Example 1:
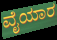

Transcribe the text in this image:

ವೈಯಾರ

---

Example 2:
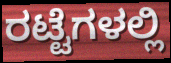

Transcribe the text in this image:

ರಟ್ಟೆಗಳಲ್ಲಿ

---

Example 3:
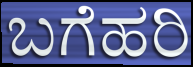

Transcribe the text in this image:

ಬಗೆಹರಿ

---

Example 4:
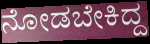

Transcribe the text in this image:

ನೋಡಬೇಕಿದ್ದ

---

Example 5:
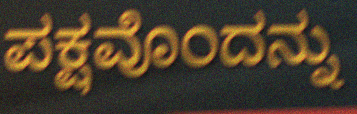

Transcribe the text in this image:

ಪಕ್ಷವೊಂದನ್ನು